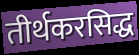
तीर्थकरसिद्ध